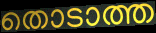
തൊടാത്ത